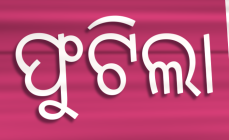
ଫୁଟିଲା